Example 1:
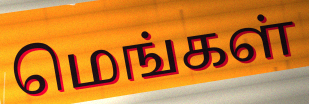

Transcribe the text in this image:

மெங்கள்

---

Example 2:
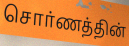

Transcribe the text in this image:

சொர்ணத்தின்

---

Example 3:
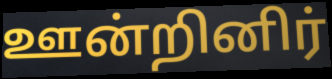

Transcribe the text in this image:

ஊன்றினிர்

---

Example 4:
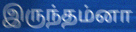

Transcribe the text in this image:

இருந்தம்னா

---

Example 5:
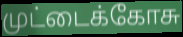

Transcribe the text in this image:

முட்டைக்கோசு